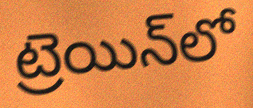
ట్రెయిన్‌లో